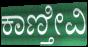
ಕಾಣ್ತೀವಿ